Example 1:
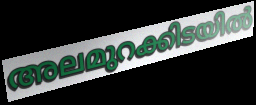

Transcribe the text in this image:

അലമുറക്കിടയിൽ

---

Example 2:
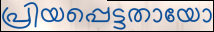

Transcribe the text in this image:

പ്രിയപ്പെട്ടതായോ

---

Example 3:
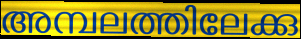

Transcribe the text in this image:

അമ്പലത്തിലേക്കു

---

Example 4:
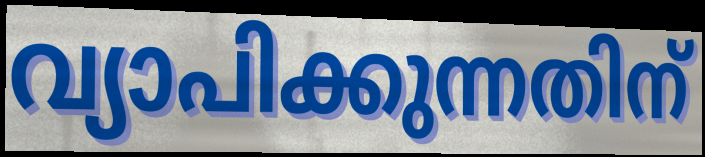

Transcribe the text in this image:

വ്യാപിക്കുന്നതിന്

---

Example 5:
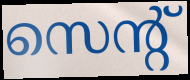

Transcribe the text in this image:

സെന്റ്